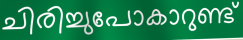
ചിരിച്ചുപോകാറുണ്ട്